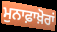
ਮੁਨਾਫ਼ਾਖ਼ੋਰਾਂ